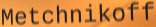
Metchnikoff